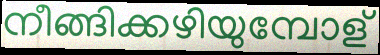
നീങ്ങിക്കഴിയുമ്പോള്